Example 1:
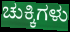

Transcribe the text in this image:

ಚುಕ್ಕಿಗಳು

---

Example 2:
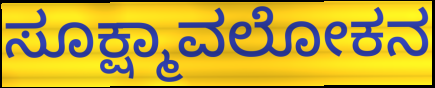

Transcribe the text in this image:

ಸೂಕ್ಷ್ಮಾವಲೋಕನ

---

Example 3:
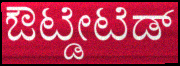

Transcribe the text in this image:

ಔಟ್ಡೇಟೆಡ್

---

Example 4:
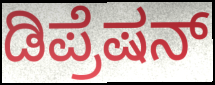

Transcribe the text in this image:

ಡಿಪ್ರೆಷನ್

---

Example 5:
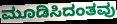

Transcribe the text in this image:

ಮೂಡಿಸಿದಂತವು